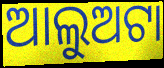
ଆଲୁଅଟା